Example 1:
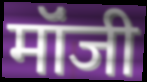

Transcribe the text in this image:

मॉंजी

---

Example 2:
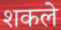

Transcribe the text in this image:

शकले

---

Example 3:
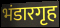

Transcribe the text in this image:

भंडारगृह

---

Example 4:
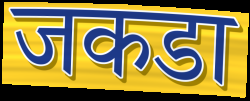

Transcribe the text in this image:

जकडा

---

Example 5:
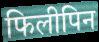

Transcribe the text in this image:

फिलीपिन